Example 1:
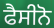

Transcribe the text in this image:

ਫੈਸੀਨੋ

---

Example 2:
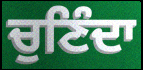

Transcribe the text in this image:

ਚੁਣਿੰਦਾ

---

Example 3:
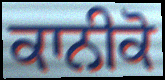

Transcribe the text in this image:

ਕਾਨੀਕੋ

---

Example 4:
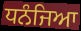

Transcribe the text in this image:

ਧਨੰਜਿਆ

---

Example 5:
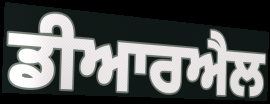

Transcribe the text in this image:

ਡੀਆਰਐਲ